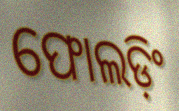
ଫୋଲଡ଼ିଂ